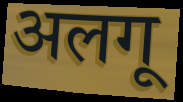
अलगू